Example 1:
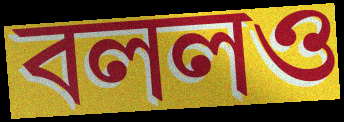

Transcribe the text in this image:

বললও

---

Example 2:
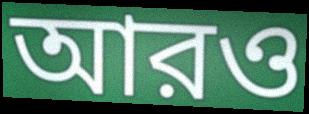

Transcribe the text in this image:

আরও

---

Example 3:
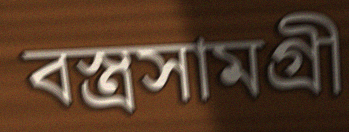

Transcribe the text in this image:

বস্ত্রসামগ্রী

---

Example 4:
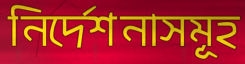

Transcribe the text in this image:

নির্দেশনাসমূহ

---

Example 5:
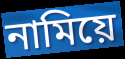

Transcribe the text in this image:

নামিয়ে